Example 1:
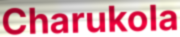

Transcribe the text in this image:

Charukola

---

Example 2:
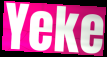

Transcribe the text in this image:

Yeke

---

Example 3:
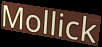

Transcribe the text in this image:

Mollick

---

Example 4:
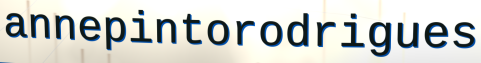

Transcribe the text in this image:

annepintorodrigues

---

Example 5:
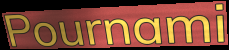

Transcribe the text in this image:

Pournami